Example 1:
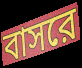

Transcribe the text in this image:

বাসরে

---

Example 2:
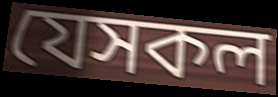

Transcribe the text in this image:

যেসকল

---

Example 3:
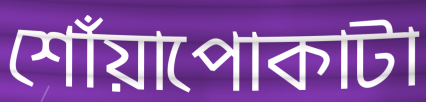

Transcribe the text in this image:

শোঁয়াপোকাটা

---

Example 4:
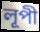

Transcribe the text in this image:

লূপী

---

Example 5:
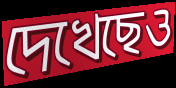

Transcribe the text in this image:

দেখেছেও